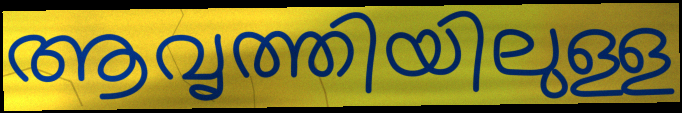
ആവൃത്തിയിലുള്ള